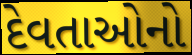
દેવતાઓનો